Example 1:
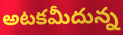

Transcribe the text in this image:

అటకమీదున్న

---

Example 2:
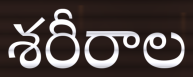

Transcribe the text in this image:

శరీరాల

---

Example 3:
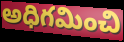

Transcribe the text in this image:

అధిగమించి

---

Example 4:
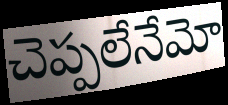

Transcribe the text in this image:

చెప్పలేనేమో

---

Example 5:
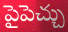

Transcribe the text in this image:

పైపెచ్చు